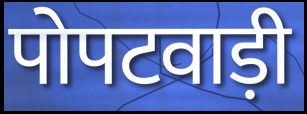
पोपटवाड़ी